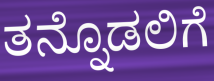
ತನ್ನೊಡಲಿಗೆ